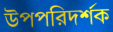
উপপরিদর্শক